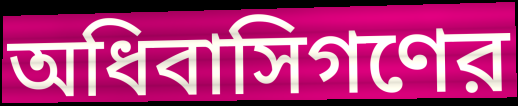
অধিবাসিগণের